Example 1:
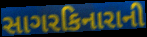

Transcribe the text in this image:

સાગરકિનારાની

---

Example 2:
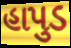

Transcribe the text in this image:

હાપુડ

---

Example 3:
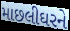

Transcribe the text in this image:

માછલીઘરને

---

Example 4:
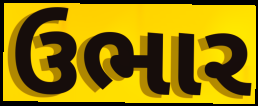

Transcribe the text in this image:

ઉભાર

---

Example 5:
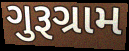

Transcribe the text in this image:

ગુરૂગ્રામ